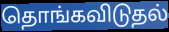
தொங்கவிடுதல்